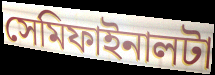
সেমিফাইনালটা